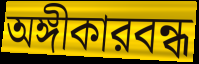
অঙ্গীকারবন্ধ